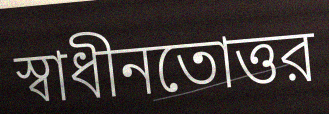
স্বাধীনতোত্তর